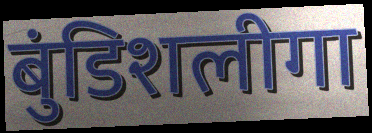
बुंडिशलीगा